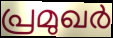
പ്രമുഖർ